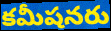
కమీషనరు